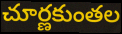
చూర్ణకుంతల